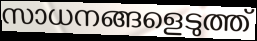
സാധനങ്ങളെടുത്ത്